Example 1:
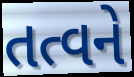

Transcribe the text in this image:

તત્વને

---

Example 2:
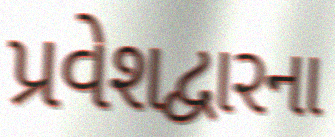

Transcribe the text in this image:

પ્રવેશદ્વારના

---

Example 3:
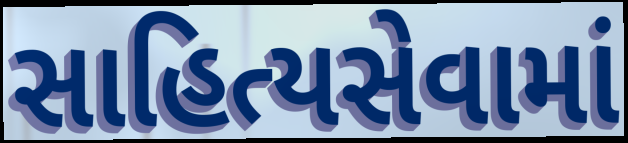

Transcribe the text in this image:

સાહિત્યસેવામાં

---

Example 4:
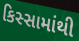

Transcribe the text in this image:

કિસ્સામાંથી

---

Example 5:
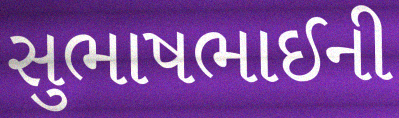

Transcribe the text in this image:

સુભાષભાઈની